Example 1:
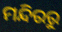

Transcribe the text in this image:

ମନ୍ଦିରରୁ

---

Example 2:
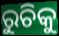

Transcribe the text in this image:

ରୁଚିକୁ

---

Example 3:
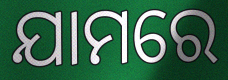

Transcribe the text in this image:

ଯାମରେ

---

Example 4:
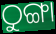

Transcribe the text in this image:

ଠୁଙ୍ଗା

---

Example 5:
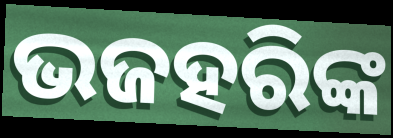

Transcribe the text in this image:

ଭଜହରିଙ୍କ